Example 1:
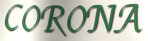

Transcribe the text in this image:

CORONA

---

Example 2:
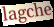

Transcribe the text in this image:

lagche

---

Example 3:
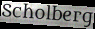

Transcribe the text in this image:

Scholberg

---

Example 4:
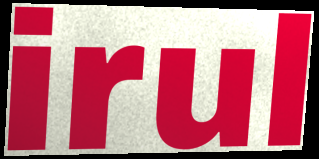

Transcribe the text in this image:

irul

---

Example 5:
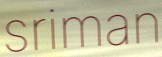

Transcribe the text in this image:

sriman